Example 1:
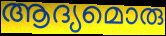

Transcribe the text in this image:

ആദ്യമൊരു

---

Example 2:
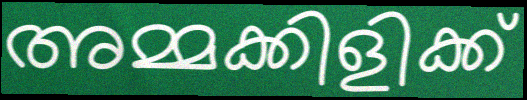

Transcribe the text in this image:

അമ്മക്കിളിക്ക്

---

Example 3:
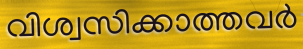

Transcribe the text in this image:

വിശ്വസിക്കാത്തവർ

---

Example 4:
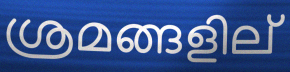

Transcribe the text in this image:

ശ്രമങ്ങളില്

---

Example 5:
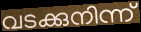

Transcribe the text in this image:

വടക്കുനിന്ന്